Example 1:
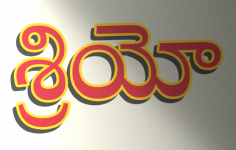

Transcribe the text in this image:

శ్రియో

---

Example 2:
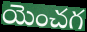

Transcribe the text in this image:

యెంచగ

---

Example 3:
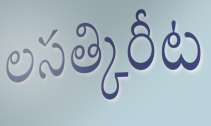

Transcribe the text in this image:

లసత్కిరీట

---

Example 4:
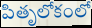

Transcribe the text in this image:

పితృలోకంలో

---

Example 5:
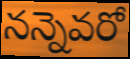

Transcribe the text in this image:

నన్నెవరో